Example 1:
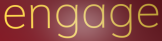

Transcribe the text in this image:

engage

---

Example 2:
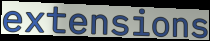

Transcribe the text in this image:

extensions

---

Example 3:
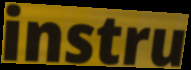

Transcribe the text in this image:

instru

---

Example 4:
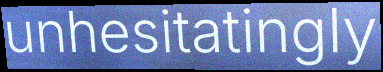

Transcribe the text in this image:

unhesitatingly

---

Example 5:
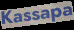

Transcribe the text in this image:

Kassapa